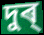
দুৰ্